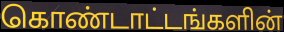
கொண்டாட்டங்களின்